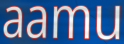
aamu